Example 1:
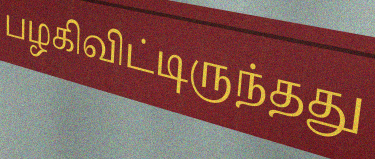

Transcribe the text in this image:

பழகிவிட்டிருந்தது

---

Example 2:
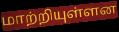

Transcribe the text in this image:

மாற்றியுள்ளன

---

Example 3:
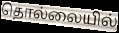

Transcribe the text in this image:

தொல்லையில்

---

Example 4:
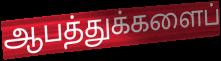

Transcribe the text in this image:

ஆபத்துக்களைப்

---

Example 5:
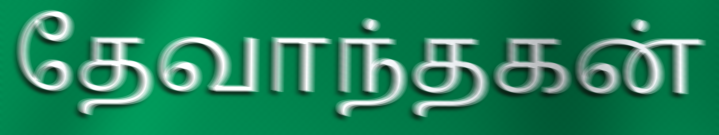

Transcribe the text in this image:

தேவாந்தகன்